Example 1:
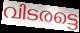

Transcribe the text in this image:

വിടരട്ടെ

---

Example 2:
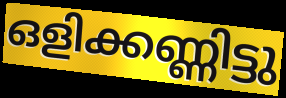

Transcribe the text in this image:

ഒളിക്കണ്ണിട്ടു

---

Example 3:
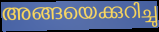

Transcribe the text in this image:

അങ്ങയെക്കുറിച്ചു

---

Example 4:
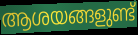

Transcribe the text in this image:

ആശയങ്ങളുണ്ട്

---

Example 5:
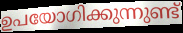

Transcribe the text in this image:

ഉപയോഗിക്കുന്നുണ്ട്